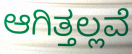
ಆಗಿತ್ತಲ್ಲವೆ